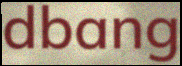
dbang